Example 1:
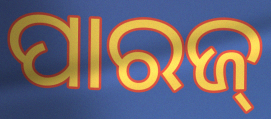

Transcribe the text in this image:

ପାରଜ୍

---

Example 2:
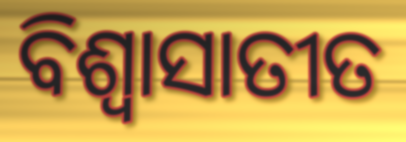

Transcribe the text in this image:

ବିଶ୍ୱାସାତୀତ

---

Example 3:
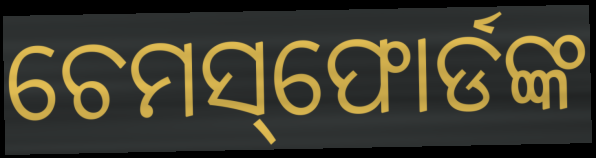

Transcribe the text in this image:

ଚେମସ୍‌ଫୋର୍ଡଙ୍କ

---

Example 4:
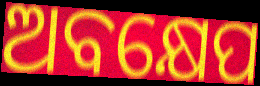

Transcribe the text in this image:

ଅବକ୍ଷେପ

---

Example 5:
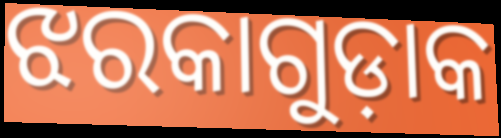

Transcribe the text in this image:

ଝରକାଗୁଡ଼ାକ